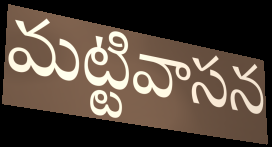
మట్టివాసన